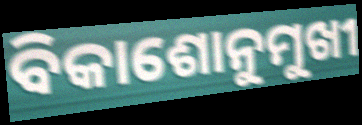
ବିକାଶୋନୁମୁଖୀ